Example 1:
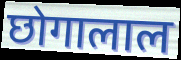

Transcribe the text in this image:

छोगालाल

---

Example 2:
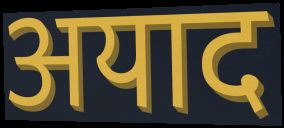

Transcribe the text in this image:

अयाद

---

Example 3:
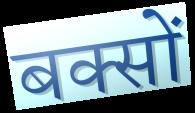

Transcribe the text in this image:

बक्सों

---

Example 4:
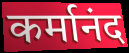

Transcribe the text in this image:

कर्मानंद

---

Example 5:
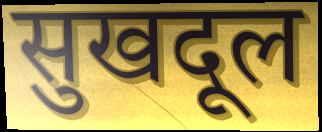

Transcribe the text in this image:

सुखदूल